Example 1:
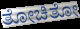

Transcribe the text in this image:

ತೋಚಿತೋ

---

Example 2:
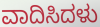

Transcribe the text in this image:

ವಾದಿಸಿದಳು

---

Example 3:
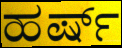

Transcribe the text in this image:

ಹರ್ಷ್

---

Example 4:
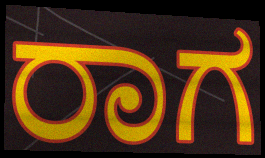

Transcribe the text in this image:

ರಾಗ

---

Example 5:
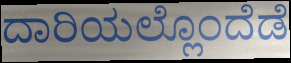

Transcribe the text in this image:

ದಾರಿಯಲ್ಲೊಂದೆಡೆ